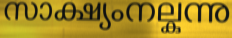
സാക്ഷ്യംനല്കുന്നു